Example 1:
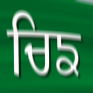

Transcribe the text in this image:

ਚਿਙ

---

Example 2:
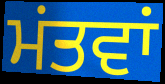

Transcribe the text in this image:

ਮਂਤਵਾਂ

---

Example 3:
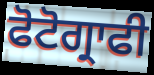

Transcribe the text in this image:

ਫੋਟੋਗ੍ਰਾਫੀ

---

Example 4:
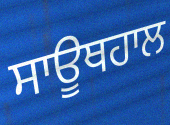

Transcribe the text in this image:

ਸਾਊਥਹਾਲ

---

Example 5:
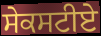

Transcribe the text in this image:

ਸੇਕਸਟੀਏ